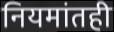
नियमांतही